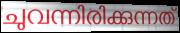
ചുവന്നിരിക്കുന്നത്